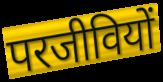
परजीवियों